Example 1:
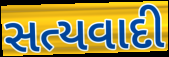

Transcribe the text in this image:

સત્યવાદી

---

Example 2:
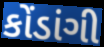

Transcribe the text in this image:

કોંડાંગી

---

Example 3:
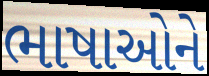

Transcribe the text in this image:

ભાષાઓને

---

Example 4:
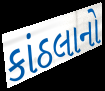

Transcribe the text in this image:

કાંઠલાનો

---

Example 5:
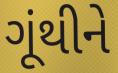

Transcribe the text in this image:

ગૂંથીને